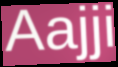
Aajji